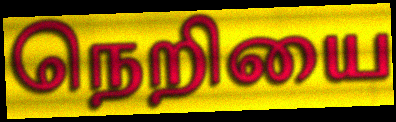
நெறியை